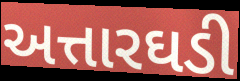
અત્તારઘડી